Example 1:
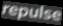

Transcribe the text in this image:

repulse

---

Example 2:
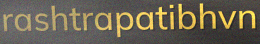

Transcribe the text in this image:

rashtrapatibhvn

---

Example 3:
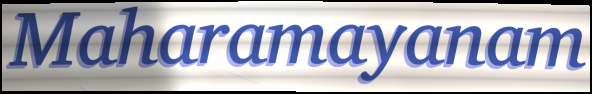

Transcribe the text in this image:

Maharamayanam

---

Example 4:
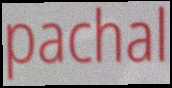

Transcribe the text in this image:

pachal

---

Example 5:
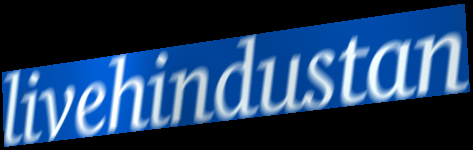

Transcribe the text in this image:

livehindustan